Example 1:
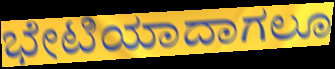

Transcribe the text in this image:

ಭೇಟಿಯಾದಾಗಲೂ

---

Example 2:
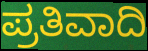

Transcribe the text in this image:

ಪ್ರತಿವಾದಿ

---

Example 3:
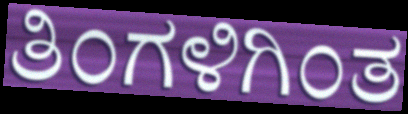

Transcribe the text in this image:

ತಿಂಗಳಿಗಿಂತ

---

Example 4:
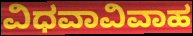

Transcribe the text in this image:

ವಿಧವಾವಿವಾಹ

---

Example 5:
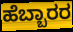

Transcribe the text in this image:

ಹೆಬ್ಬಾರರ